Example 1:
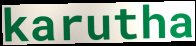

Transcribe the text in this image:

karutha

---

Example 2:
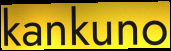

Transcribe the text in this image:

kankuno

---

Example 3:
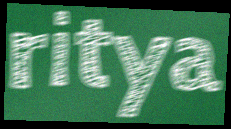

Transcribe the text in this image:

ritya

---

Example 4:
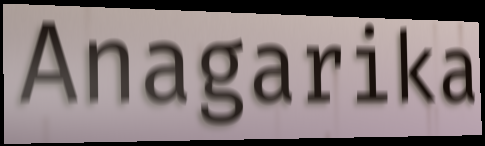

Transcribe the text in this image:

Anagarika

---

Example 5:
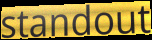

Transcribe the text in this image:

standout